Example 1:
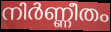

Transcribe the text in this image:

നിർണ്ണീതം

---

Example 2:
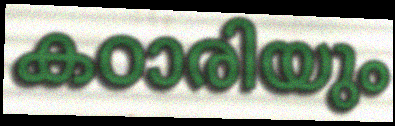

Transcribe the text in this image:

കഠാരിയും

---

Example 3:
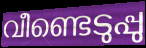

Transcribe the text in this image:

വീണ്ടെടുപ്പു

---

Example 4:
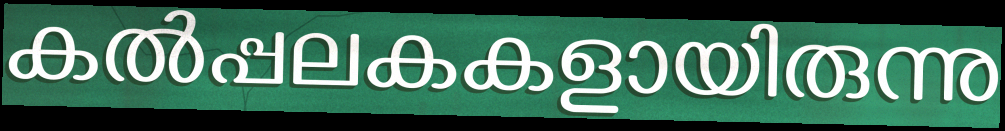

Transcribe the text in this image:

കൽപ്പലകകളായിരുന്നു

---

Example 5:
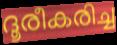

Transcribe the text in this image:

ദൂരീകരിച്ച